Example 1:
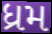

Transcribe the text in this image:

ધ્રમ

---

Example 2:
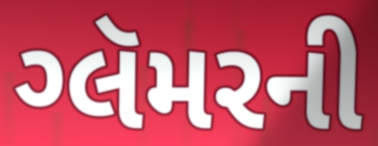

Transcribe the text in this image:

ગ્લૅમરની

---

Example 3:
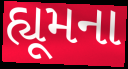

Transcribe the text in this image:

હ્યૂમના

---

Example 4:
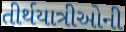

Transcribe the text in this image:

તીર્થયાત્રીઓની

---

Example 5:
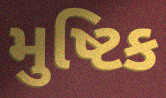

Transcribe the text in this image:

મુષ્ટિક